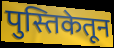
पुस्तिकेतून